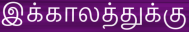
இக்காலத்துக்கு